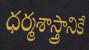
ధర్మశాస్త్రానికే